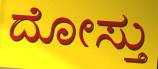
ದೋಸ್ತು